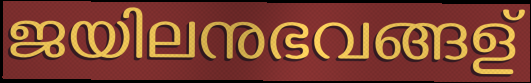
ജയിലനുഭവങ്ങള്